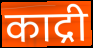
काद्री